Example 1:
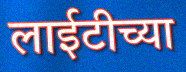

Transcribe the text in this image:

लाईटीच्या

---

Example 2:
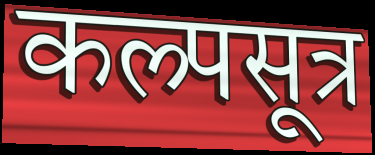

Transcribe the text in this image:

कल्पसूत्र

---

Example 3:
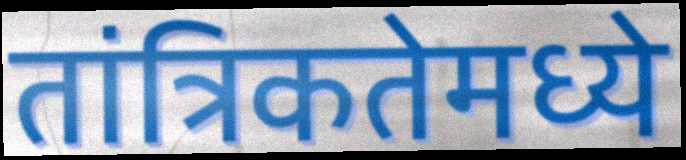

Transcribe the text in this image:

तांत्रिकतेमध्ये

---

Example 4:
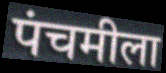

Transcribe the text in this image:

पंचमीला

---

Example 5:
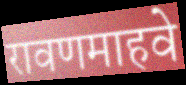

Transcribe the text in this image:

रावणमाहवे